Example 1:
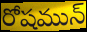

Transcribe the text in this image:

రోషమున్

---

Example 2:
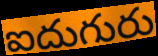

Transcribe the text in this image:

ఐదుగురు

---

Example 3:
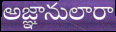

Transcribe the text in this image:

అజ్ఞానులారా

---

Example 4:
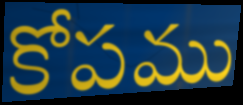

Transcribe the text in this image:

కోపము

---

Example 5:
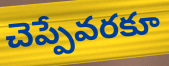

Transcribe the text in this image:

చెప్పేవరకూ